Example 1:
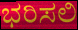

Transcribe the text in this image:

ಭರಿಸಲಿ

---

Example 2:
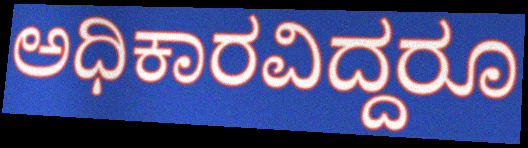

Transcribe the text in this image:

ಅಧಿಕಾರವಿದ್ದರೂ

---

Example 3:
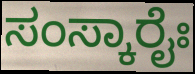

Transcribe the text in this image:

ಸಂಸ್ಕಾರೈಃ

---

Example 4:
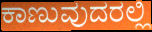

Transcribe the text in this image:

ಕಾಣುವುದರಲ್ಲಿ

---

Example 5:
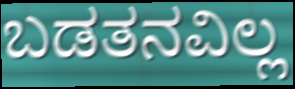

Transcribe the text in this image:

ಬಡತನವಿಲ್ಲ